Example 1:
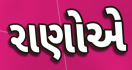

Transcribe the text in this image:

રાણોએ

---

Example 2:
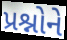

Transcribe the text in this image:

પ્રશ્નોને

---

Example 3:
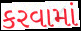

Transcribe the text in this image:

કરવામાં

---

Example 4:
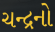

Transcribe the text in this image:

ચન્દ્રનો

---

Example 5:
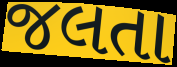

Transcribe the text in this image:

જલતા